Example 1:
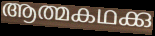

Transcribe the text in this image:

ആത്മകഥക്കു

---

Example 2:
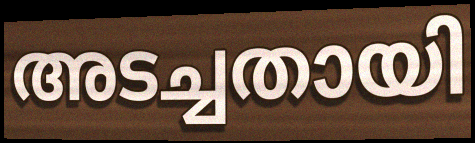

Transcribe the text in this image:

അടച്ചതായി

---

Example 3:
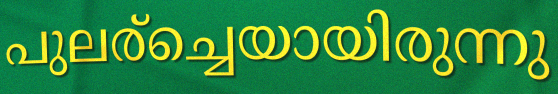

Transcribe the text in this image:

പുലര്ച്ചെയായിരുന്നു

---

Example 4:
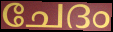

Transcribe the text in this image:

ചേദം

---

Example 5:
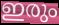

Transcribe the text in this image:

ഇരും